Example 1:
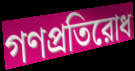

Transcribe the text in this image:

গণপ্রতিরোধ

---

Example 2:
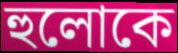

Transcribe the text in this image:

হুলোকে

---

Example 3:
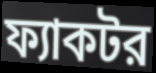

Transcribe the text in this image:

ফ্যাকটর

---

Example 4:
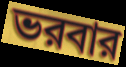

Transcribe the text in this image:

ভরবার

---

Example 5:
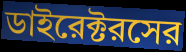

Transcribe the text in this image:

ডাইরেক্টরসের